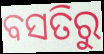
ବସତିରୁ